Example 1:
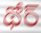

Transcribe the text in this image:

థోర్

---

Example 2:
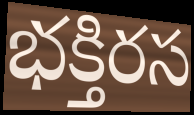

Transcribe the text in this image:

భక్తిరస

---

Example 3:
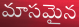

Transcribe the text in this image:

మాసమైన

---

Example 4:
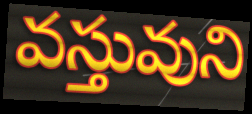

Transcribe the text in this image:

వస్తువుని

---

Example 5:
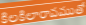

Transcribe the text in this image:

కిలకిలారావముతో